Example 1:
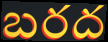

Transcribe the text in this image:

బరద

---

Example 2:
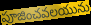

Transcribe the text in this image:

పూజించవలయును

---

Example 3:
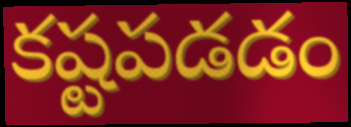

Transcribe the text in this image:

కష్టపడడం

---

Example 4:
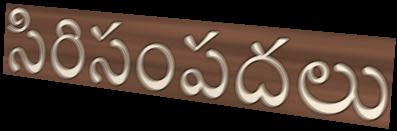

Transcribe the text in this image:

సిరిసంపదలు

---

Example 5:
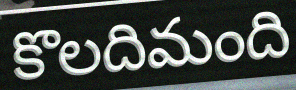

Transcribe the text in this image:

కొలదిమంది